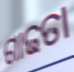
ଗାଢତା